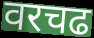
वरचढ